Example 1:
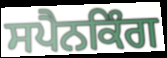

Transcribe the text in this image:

ਸਪੈਨਕਿੰਗ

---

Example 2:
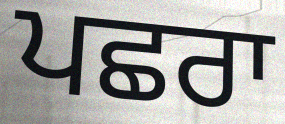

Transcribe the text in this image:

ਪਛਰਾ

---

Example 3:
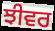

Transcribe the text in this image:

ਝੀਵਰ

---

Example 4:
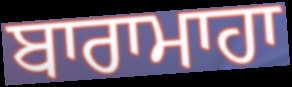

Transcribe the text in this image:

ਬਾਰਾਮਾਹਾ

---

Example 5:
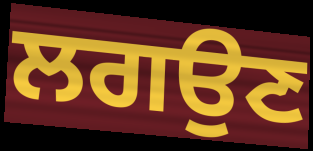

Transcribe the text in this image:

ਲਗਉਣ